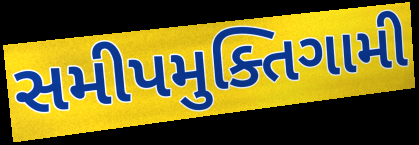
સમીપમુક્તિગામી